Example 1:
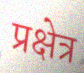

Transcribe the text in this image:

प्रक्षेत्र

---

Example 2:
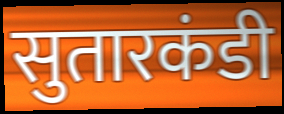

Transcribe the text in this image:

सुतारकंडी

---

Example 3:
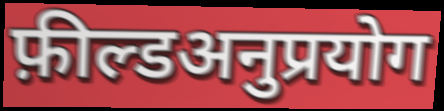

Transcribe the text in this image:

फ़ील्डअनुप्रयोग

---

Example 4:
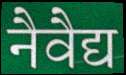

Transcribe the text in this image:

नैवैद्य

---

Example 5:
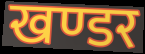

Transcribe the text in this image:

खण्डर